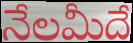
నేలమీదే